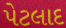
પેટલાદ